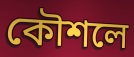
কৌশলে